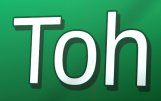
Toh